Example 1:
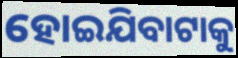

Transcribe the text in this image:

ହୋଇଯିବାଟାକୁ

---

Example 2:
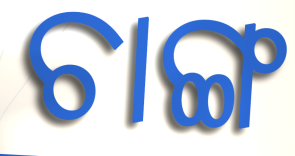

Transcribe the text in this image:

ଚାଙ୍ଗ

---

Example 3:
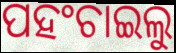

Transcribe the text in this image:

ପହଂଚାଇଲୁ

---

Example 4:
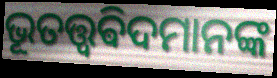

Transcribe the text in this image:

ଭୂତତ୍ତ୍ୱଵିଦମାନଙ୍କ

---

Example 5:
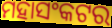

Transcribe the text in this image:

ମହାସଂକଟର